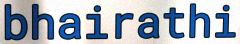
bhairathi